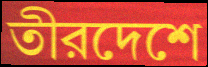
তীরদেশে